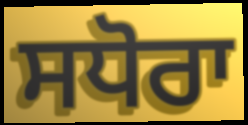
ਸਧੋਰਾ